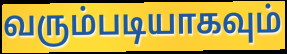
வரும்படியாகவும்